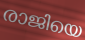
രാജിയെ